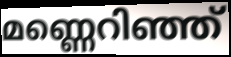
മണ്ണെറിഞ്ഞ്